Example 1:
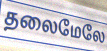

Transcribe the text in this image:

தலைமேலே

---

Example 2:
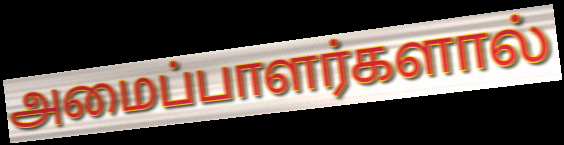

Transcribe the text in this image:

அமைப்பாளர்களால்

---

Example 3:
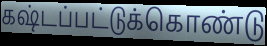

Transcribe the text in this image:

கஷ்டப்பட்டுக்கொண்டு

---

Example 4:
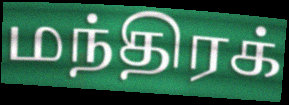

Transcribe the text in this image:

மந்திரக்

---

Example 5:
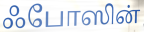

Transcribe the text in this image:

ஃபோஸின்